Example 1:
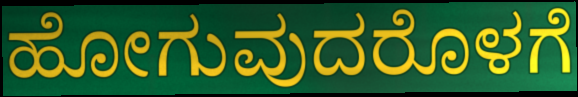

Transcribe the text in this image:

ಹೋಗುವುದರೊಳಗೆ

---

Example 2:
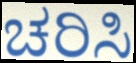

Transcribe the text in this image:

ಚರಿಸಿ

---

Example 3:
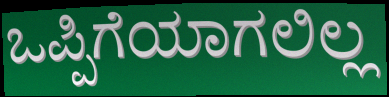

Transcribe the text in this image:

ಒಪ್ಪಿಗೆಯಾಗಲಿಲ್ಲ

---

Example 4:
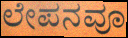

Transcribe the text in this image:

ಲೇಪನವೂ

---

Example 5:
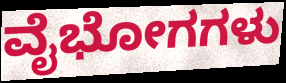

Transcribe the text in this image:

ವೈಭೋಗಗಳು